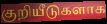
குறியீடுகளாக